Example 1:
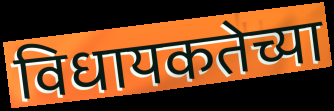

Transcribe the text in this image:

विधायकतेच्या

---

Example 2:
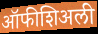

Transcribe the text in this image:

ऑफीशिअली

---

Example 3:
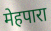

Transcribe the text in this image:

मेहपारा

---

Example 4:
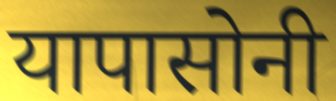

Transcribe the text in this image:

यापासोनी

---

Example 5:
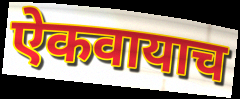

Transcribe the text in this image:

ऐकवायाच